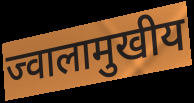
ज्वालामुखीय